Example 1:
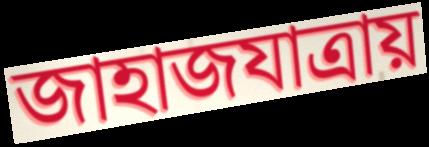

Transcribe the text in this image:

জাহাজযাত্রায়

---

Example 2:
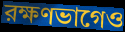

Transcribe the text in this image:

রক্ষণভাগেও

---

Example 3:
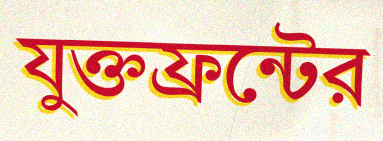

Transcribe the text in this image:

যুক্তফ্রন্টের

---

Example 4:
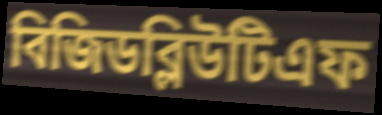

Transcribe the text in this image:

বিজিডব্লিউটিএফ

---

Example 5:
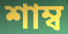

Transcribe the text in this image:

শাম্ব